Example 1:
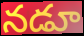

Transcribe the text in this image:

నడూ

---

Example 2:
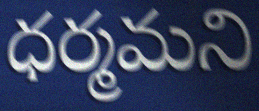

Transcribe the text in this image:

ధర్మమని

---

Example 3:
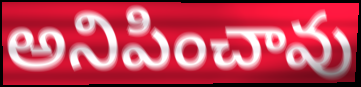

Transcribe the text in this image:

అనిపించావు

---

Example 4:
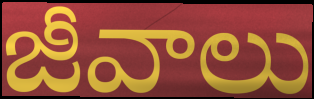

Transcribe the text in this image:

జీవాలు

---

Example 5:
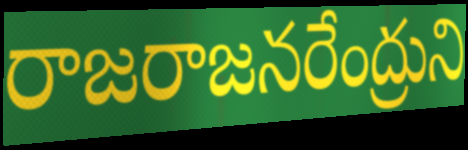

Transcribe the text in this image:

రాజరాజనరేంద్రుని